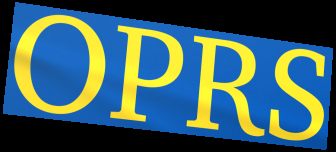
OPRS